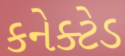
કનેક્ટેડ